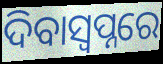
ଦିବାସ୍ବପ୍ନରେ